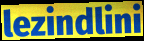
lezindlini